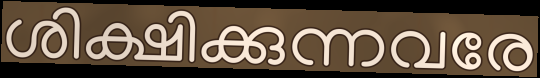
ശിക്ഷിക്കുന്നവരേ